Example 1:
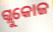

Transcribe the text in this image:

ଗ୍ଲୁକୋଜ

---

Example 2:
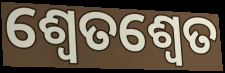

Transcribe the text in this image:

ଶ୍ବେତଶ୍ଵେତ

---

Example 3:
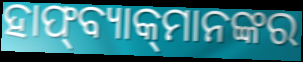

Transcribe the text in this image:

ହାଫ୍‍ବ୍ୟାକ୍‍ମାନଙ୍କର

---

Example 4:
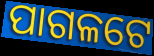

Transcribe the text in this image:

ପାଗଳଟେ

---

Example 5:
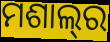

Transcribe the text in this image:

ମଶାଲ୍‌ର